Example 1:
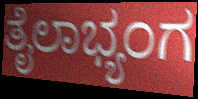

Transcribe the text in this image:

ತೈಲಾಭ್ಯಂಗ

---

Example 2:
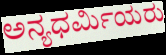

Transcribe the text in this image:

ಅನ್ಯಧರ್ಮಿಯರು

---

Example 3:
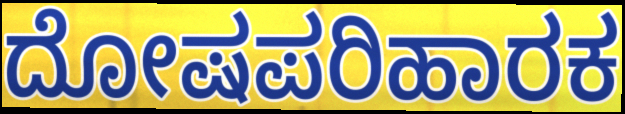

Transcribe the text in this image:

ದೋಷಪರಿಹಾರಕ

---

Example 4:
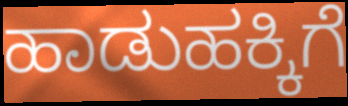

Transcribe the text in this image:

ಹಾಡುಹಕ್ಕಿಗೆ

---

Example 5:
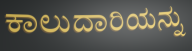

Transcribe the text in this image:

ಕಾಲುದಾರಿಯನ್ನು